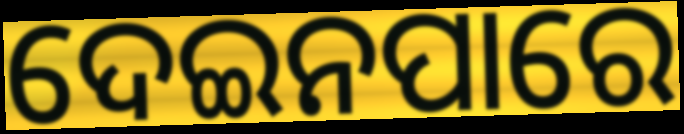
ଦେଇନପାରେ